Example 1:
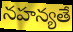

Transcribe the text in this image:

నహన్యతే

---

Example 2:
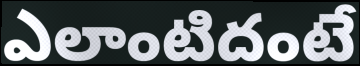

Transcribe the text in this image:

ఎలాంటిదంటే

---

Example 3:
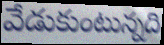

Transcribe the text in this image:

వేడుకుంటున్నది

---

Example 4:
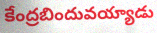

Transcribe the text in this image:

కేంద్రబిందువయ్యాడు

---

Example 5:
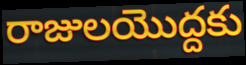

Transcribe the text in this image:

రాజులయొద్దకు